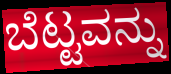
ಬೆಟ್ಟವನ್ನು